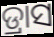
ଡ୍ରାସ